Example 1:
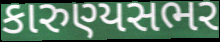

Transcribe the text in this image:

કારુણ્યસભર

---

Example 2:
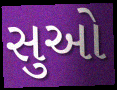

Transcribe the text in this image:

સુઓ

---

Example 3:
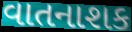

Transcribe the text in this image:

વાતનાશક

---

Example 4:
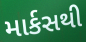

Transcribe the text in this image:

માર્કસથી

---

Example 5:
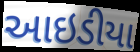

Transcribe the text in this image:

આઇડીયા